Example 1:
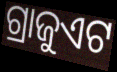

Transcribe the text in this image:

ଗ୍ରାଜୁଏଟ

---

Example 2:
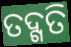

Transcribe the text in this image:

ତଦ୍ଗତି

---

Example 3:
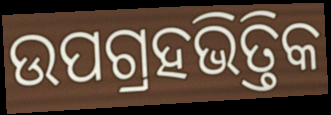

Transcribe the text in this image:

ଉପଗ୍ରହଭିତ୍ତିକ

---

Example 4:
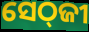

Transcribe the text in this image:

ସେଠ୍‌ଜୀ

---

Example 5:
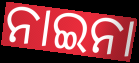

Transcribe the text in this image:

ନାଇନା